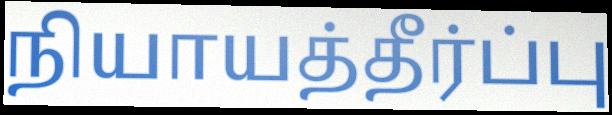
நியாயத்தீர்ப்பு